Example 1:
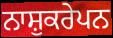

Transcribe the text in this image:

ਨਾਸ਼ੁਕਰੇਪਨ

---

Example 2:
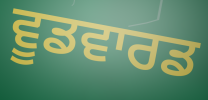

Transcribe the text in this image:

ਵੂਡਵਾਰਡ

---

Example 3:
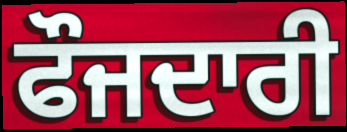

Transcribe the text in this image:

ਫੌਜਦਾਰੀ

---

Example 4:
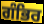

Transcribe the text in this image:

ਗੰਭਿਰ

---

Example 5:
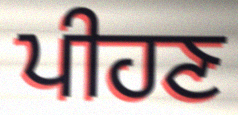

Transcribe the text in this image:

ਪੀਹਣ